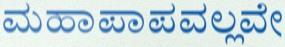
ಮಹಾಪಾಪವಲ್ಲವೇ